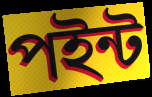
পইন্ট